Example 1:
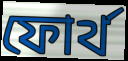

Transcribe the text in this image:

ফোর্থ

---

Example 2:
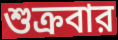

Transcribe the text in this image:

শুক্রবার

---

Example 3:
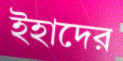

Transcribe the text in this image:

ইহাদের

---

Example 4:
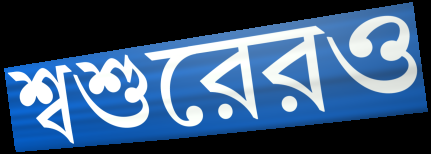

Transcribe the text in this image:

শ্বশুরেরও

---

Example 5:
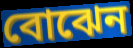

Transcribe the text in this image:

বোঝেন